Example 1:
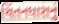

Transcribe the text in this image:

ચિંતનધારાનું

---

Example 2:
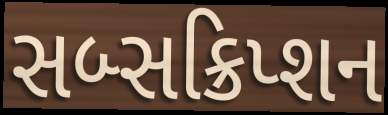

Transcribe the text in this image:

સબ્સક્રિપ્શન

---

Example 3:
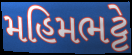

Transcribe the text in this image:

મહિમભટ્ટે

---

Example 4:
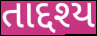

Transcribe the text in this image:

તાદ્દશ્ય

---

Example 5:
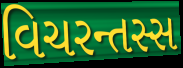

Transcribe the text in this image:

વિચરન્તસ્સ